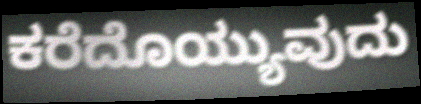
ಕರೆದೊಯ್ಯುವುದು